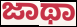
ಜಾಥಾ